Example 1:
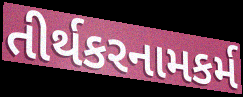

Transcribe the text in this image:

તીર્થકરનામકર્મ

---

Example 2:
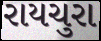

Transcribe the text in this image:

રાયચુરા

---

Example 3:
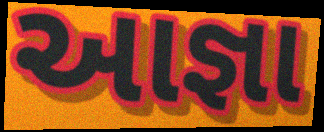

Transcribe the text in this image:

આજ્ઞા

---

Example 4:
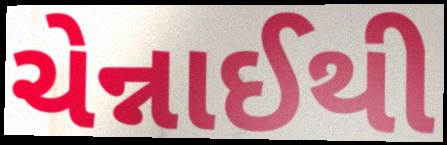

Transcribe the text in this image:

ચેન્નાઈથી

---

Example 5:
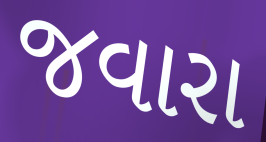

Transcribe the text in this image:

જવારા